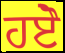
ਹਏੋ